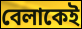
বেলাকেই